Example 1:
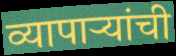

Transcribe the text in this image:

व्यापाऱ्यांची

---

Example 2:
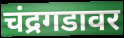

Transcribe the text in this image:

चंद्रगडावर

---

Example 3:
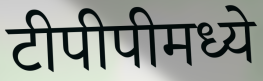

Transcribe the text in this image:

टीपीपीमध्ये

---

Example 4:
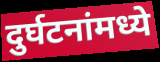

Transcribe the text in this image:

दुर्घटनांमध्ये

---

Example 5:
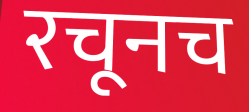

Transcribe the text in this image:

रचूनच